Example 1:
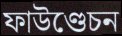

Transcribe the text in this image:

ফাউণ্ডেচন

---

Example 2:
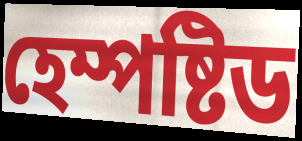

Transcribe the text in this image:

হেম্পষ্টিড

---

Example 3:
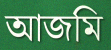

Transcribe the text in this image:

আজমি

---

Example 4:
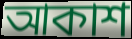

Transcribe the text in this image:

আকাশ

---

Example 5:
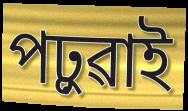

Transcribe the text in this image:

পঢ়ুৱাই